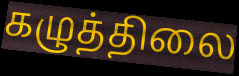
கழுத்திலை